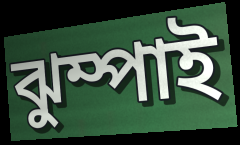
ঝুম্পাই